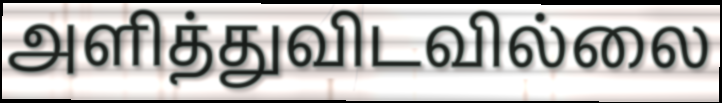
அளித்துவிடவில்லை